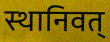
स्थानिवत्